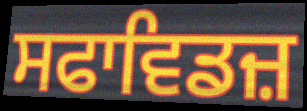
ਸਫਾਵਿਡਜ਼